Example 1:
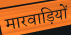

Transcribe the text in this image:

मारवाड़ियों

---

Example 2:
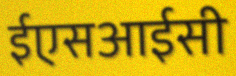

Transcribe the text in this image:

ईएसआईसी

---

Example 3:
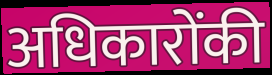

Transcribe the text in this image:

अधिकारोंकी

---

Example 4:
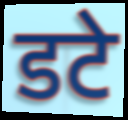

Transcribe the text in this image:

डटे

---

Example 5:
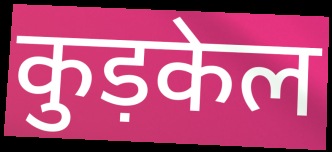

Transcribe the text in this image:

कुड़केल